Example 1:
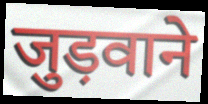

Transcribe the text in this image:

जुड़वाने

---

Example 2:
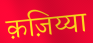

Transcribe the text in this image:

क़ज़िय्या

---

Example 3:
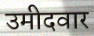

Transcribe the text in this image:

उमीदवार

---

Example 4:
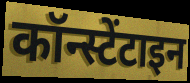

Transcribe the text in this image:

कॉन्स्टेंटाइन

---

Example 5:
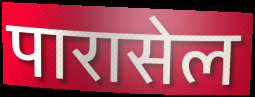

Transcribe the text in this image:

पारासेल